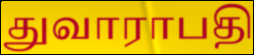
துவாராபதி